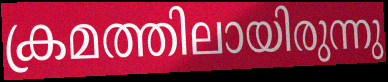
ക്രമത്തിലായിരുന്നു